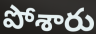
పోశారు